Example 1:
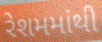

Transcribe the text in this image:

રેશમમાંથી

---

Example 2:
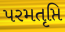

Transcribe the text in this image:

પરમતૃપ્તિ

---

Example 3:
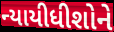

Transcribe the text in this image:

ન્યાયીધીશોને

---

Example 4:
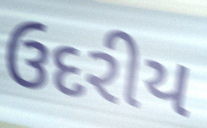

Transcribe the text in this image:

ઉદરીય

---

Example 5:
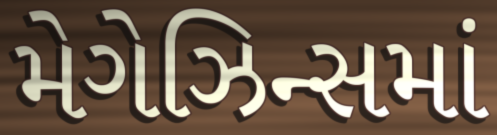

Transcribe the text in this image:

મેગેઝિન્સમાં